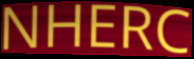
NHERC